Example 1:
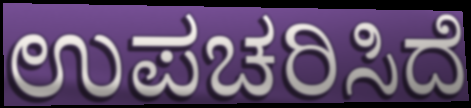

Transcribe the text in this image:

ಉಪಚರಿಸಿದೆ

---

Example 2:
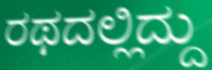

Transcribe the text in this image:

ರಥದಲ್ಲಿದ್ದು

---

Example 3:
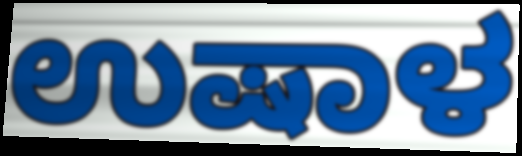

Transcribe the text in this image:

ಉಷಾಳ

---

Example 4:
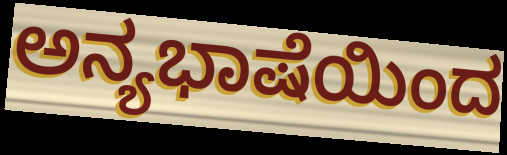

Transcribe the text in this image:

ಅನ್ಯಭಾಷೆಯಿಂದ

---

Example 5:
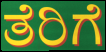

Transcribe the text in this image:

ತೆರಿಗೆ